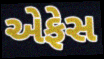
એફેસ